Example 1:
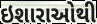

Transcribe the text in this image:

ઇશારાઓથી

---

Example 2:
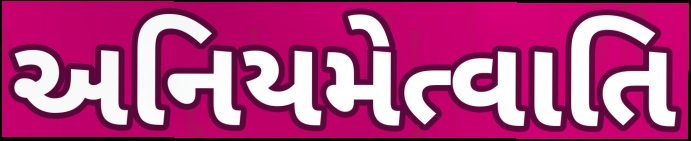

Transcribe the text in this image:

અનિયમેત્વાતિ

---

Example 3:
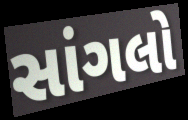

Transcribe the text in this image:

સાંગલો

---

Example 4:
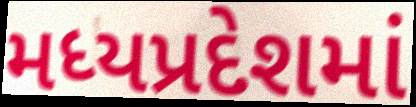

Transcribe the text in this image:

મધ્યપ્રદેશમાં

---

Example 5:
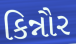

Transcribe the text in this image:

કિન્નૌર